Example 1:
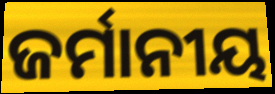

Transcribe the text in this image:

ଜର୍ମାନୀୟ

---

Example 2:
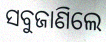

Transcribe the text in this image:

ସବୁଜାଣିଲେ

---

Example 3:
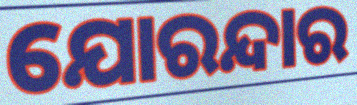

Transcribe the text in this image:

ଯୋରନ୍ଦାର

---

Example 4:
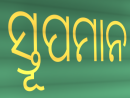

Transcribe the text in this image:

ସ୍ତୂପମାନ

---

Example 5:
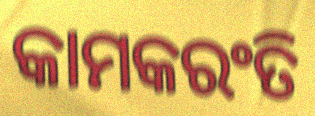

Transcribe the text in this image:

କାମକରଂତି